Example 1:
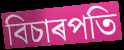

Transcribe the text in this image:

বিচাৰপতি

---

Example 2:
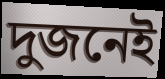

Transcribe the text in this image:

দুজনেই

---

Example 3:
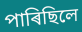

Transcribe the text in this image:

পাৰিছিলে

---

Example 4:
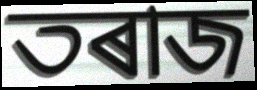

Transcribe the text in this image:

তৰাজ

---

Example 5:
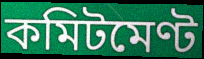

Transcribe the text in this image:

কমিটমেণ্ট